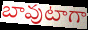
బావుటాగా